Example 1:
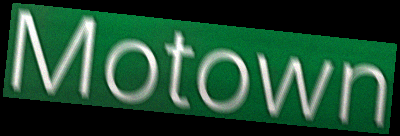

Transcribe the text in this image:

Motown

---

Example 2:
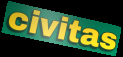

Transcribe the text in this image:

civitas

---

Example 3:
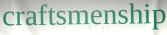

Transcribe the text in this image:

craftsmenship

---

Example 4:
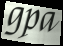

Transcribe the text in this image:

gpa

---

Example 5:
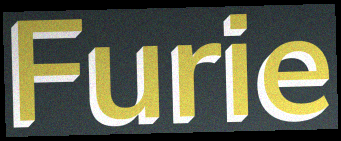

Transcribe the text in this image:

Furie